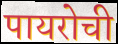
पायरोची